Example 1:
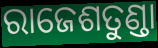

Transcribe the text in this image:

ରାଜେଶତୁଣ୍ଡା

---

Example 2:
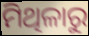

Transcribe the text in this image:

ମିଥିଳାରୁ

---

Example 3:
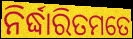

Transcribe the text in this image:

ନିର୍ଦ୍ଧାରିତମତେ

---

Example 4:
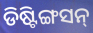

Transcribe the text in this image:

ଡିଷ୍ଟିଙ୍ଗସନ୍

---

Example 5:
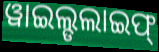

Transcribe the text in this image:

ୱାଇଲ୍ଡଲାଇଫ୍